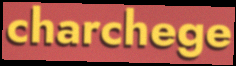
charchege